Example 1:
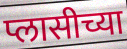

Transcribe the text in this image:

प्लासीच्या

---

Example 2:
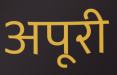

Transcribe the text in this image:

अपूरी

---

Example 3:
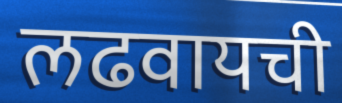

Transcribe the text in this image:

लढवायची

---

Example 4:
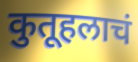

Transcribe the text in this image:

कुतूहलाचं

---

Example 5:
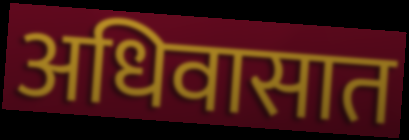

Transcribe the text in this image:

अधिवासात